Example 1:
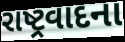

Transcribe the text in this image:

રાષ્ટ્રવાદના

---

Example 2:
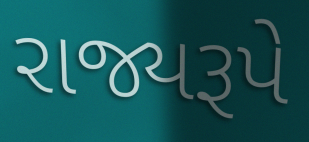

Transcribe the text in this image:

રાજ્યરૂપે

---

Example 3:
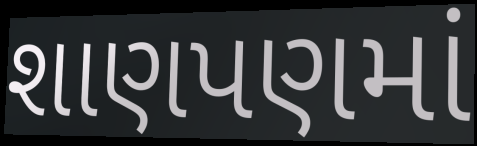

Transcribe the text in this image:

શાણપણમાં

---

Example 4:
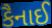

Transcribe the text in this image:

કૈનાઈ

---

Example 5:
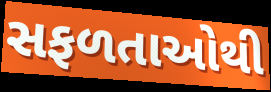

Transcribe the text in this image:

સફળતાઓથી